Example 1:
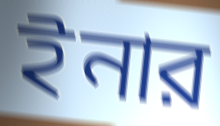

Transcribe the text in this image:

ইনার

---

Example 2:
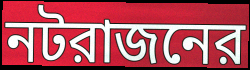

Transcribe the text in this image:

নটরাজনের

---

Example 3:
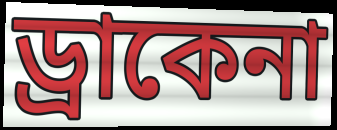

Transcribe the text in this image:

ড্রাকেনা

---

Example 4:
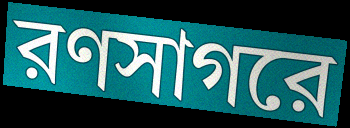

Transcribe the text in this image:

রণসাগরে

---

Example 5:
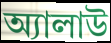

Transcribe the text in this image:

অ্যালাউ